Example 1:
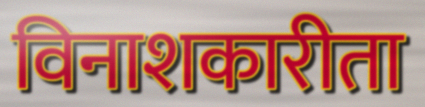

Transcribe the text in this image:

विनाशकारीता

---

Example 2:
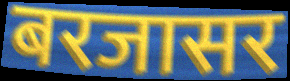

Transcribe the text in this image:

बरजासर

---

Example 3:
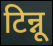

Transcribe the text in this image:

टिन्नू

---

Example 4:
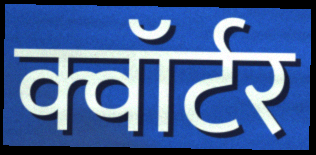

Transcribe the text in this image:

क्‍वॉर्टर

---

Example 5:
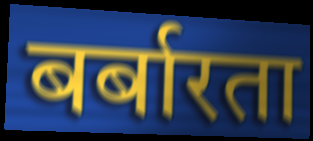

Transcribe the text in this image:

बर्बारता